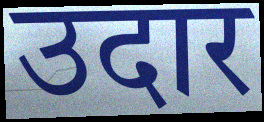
उदार